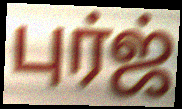
புர்ஜ்